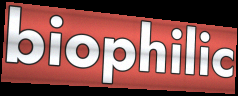
biophilic